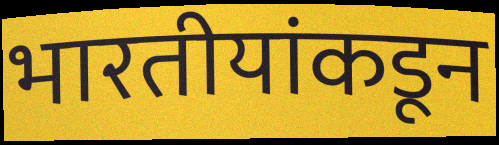
भारतीयांकडून